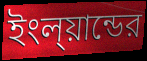
ইংল্য়ান্ডের